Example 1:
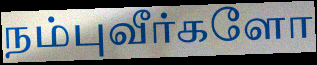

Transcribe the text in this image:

நம்புவீர்களோ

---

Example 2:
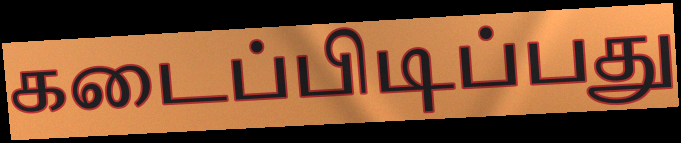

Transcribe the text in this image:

கடைப்பிடிப்பது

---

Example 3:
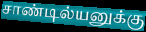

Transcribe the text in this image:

சாண்டில்யனுக்கு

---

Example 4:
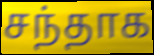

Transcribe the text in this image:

சந்தாக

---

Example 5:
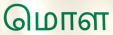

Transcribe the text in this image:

மொள